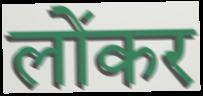
लोंकर